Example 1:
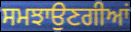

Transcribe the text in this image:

ਸਮਝਾਉਣਗੀਆਂ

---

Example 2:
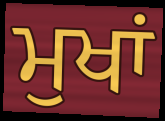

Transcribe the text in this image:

ਮੁਖਾਂ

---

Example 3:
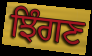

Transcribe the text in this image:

ਝਿੰਗਣ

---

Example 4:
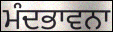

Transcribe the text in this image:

ਮੰਦਭਾਵਨਾ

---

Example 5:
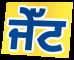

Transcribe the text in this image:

ਜੇੱਟ